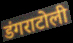
डंगराटोली